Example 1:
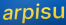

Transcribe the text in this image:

arpisu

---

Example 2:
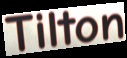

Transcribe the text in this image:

Tilton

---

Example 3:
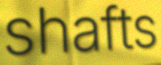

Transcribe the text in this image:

shafts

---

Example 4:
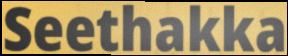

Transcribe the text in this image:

Seethakka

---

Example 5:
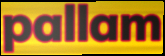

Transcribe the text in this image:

pallam